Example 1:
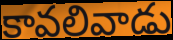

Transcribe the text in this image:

కావలివాడు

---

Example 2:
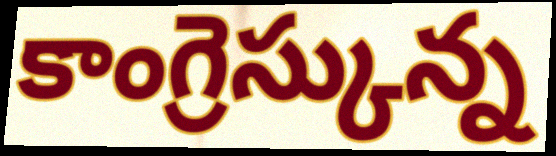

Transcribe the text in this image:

కాంగ్రెస్కున్న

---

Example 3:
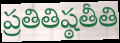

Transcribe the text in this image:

ప్రతితిష్ఠతీతి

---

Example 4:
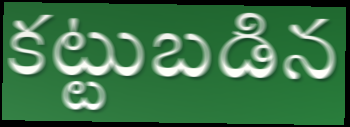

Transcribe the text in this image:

కట్టుబడిన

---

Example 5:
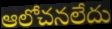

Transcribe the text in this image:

ఆలోచనలేదు